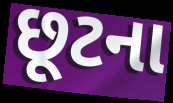
છૂટના